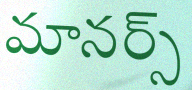
మానర్స్